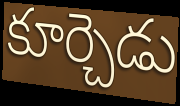
కూర్చెడు